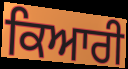
ਕਿਆਰੀ